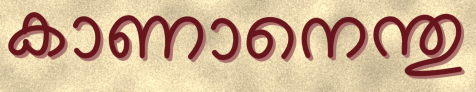
കാണാനെന്തു